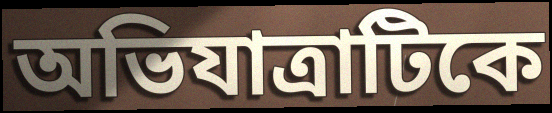
অভিযাত্রাটিকে